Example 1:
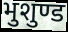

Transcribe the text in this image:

भुशुण्ड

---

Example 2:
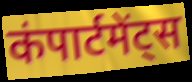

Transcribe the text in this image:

कंपार्टमेंट्स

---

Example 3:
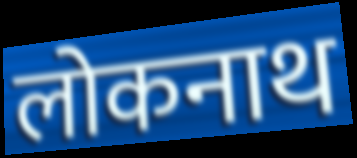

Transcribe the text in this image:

लोकनाथ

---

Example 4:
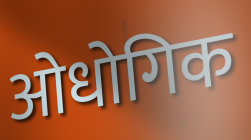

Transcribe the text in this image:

ओधोगिक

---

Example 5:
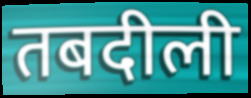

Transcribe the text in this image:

तबदीली